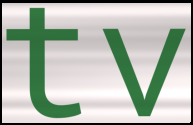
tv